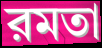
রমতা